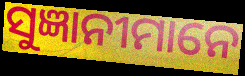
ସୁଜ୍ଞାନୀମାନେ